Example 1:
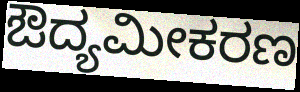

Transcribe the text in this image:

ಔದ್ಯಮೀಕರಣ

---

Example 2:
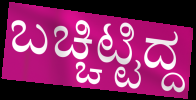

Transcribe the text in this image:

ಬಚ್ಚಿಟ್ಟಿದ್ದ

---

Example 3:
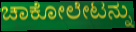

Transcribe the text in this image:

ಚಾಕೋಲೇಟನ್ನು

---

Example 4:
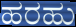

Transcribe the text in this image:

ಹರಹು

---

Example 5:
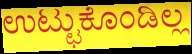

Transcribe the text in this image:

ಉಟ್ಟುಕೊಂಡಿಲ್ಲ